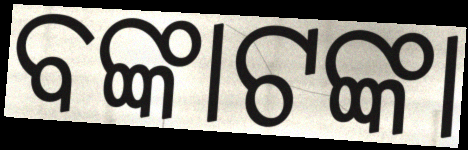
ବଙ୍କାଟଙ୍କା